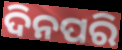
ଦିନପରି